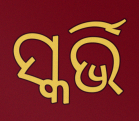
ସ୍କର୍ଭି